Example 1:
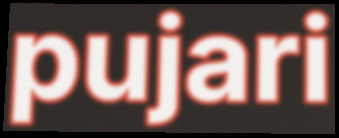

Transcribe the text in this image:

pujari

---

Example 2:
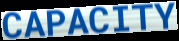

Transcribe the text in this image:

CAPACITY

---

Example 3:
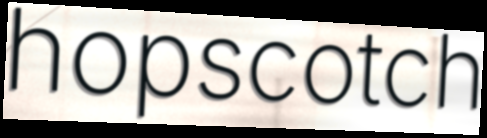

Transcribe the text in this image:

hopscotch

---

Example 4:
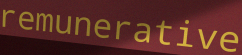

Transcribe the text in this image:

remunerative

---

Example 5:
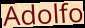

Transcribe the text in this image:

Adolfo